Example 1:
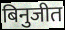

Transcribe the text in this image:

बिनुजीत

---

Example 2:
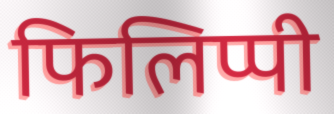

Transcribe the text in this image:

फिलिप्पी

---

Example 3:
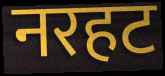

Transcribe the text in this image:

नरहट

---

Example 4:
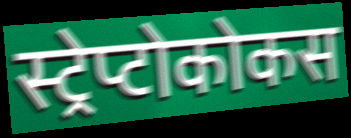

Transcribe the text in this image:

स्ट्रेप्टोकोकस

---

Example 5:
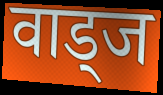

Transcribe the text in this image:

वाड्ज